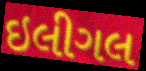
ઇલીગલ